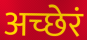
अच्छेरं